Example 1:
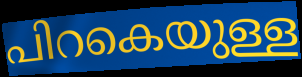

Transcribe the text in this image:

പിറകെയുള്ള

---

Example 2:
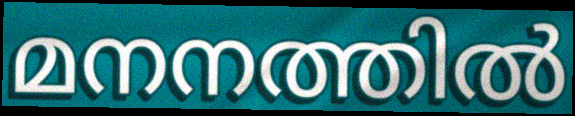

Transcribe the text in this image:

മനനത്തിൽ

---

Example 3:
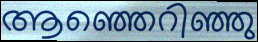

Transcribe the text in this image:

ആഞ്ഞെറിഞ്ഞു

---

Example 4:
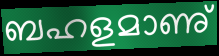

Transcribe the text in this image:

ബഹളമാണു്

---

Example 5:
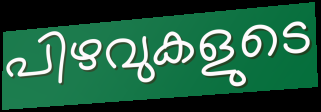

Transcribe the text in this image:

പിഴവുകളുടെ